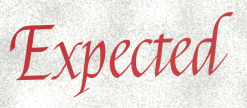
Expected